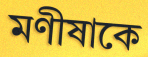
মণীষাকে